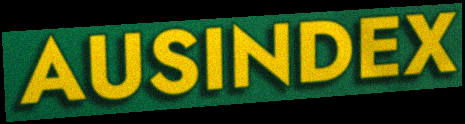
AUSINDEX